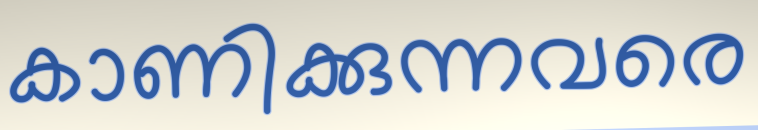
കാണിക്കുന്നവരെ